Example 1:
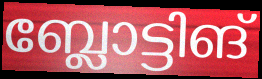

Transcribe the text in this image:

ബ്ലോട്ടിങ്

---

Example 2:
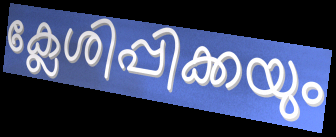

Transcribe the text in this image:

ക്ലേശിപ്പിക്കയും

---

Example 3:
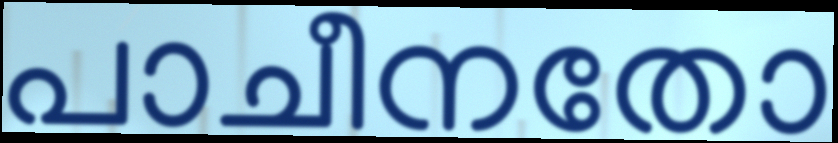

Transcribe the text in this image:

പാചീനതോ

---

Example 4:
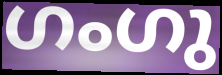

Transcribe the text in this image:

ഗംഗു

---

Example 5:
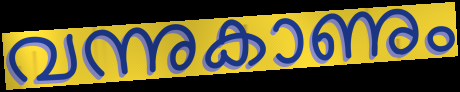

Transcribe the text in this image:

വന്നുകാണും